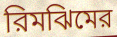
রিমঝিমের